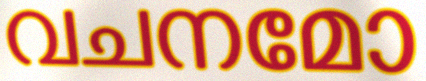
വചനമോ